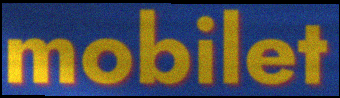
mobilet